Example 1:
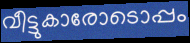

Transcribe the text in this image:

വീട്ടുകാരോടൊപ്പം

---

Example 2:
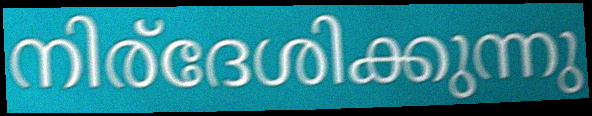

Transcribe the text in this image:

നിര്ദേശിക്കുന്നു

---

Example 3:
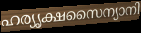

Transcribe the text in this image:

ഹര്യൃക്ഷസൈന്യാനി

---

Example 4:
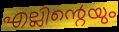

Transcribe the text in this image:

എല്ലിന്റെയും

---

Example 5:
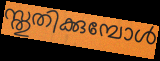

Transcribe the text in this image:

സ്തുതിക്കുമ്പോൾ